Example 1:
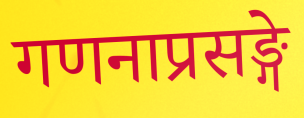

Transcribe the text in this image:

गणनाप्रसङ्गे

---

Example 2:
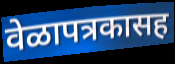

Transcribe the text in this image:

वेळापत्रकासह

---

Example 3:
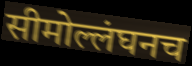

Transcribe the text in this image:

सीमोल्लंघनच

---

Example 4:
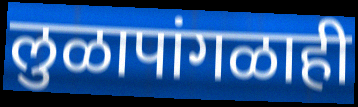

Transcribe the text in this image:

लुळापांगळाही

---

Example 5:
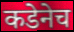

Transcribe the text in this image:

कडेनेच